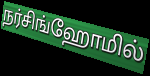
நர்சிங்ஹோமில்